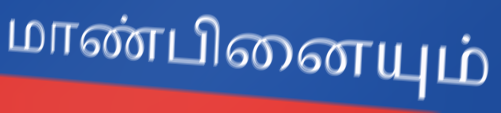
மாண்பினையும்